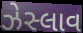
ઝેસ્લાવ